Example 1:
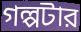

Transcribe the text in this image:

গল্পটার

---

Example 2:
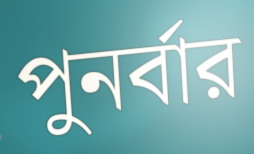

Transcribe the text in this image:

পুনর্বার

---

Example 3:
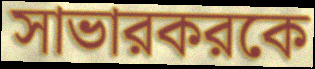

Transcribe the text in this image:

সাভারকরকে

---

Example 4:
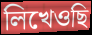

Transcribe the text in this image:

লিখেওছি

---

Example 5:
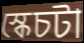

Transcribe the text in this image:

স্কেচটা